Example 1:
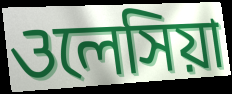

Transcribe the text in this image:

ওলেসিয়া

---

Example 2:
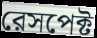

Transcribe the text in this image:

রেসপেক্ট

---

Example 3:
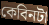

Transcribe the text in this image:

কেবিনটা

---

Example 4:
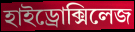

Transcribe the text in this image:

হাইড্রোক্সিলেজ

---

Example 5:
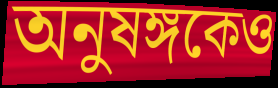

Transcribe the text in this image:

অনুষঙ্গকেও